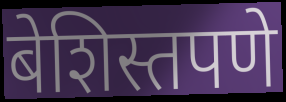
बेशिस्तपणे